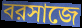
বরসাজে